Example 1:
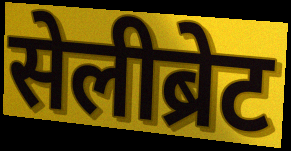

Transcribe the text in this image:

सेलीब्रेट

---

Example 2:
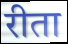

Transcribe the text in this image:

रीता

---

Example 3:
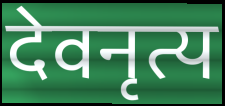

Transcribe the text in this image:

देवनृत्य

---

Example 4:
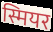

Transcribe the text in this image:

स्मियर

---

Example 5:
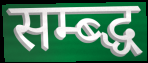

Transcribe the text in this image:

सम्ब्द्ध